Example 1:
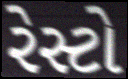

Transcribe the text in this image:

રેસ્ટો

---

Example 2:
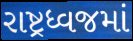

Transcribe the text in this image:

રાષ્ટ્રધ્વજમાં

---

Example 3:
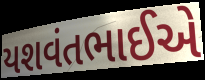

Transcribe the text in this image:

યશવંતભાઈએ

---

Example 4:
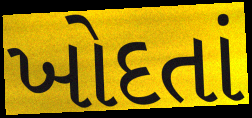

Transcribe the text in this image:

ખોદતાં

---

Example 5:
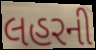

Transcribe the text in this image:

લહરની